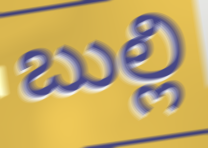
బుల్లి